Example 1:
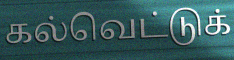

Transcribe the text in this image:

கல்வெட்டுக்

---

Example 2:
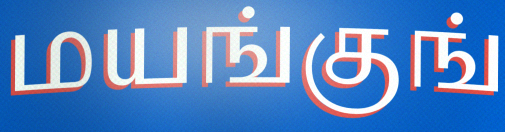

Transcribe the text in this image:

மயங்குங்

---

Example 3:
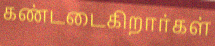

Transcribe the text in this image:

கண்டடைகிறார்கள்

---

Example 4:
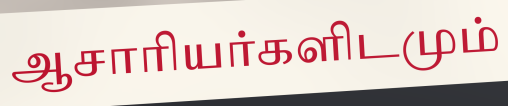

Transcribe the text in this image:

ஆசாரியர்களிடமும்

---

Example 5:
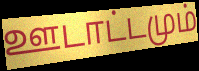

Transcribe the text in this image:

ஊடாட்டமும்